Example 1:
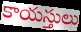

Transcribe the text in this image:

కాయస్తులు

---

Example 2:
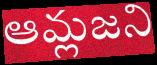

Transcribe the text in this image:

ఆమ్లజని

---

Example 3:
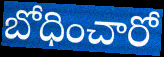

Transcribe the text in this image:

బోధించారో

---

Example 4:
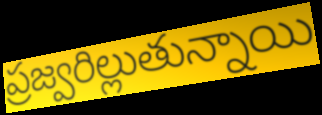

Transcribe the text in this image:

ప్రజ్వరిల్లుతున్నాయి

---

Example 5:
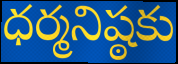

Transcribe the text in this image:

ధర్మనిష్ఠకు